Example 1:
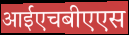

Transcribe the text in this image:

आईएचबीएएस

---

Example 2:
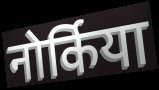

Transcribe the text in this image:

नोर्किया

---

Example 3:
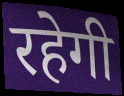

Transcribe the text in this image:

रहेगी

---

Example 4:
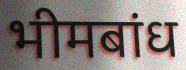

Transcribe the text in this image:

भीमबांध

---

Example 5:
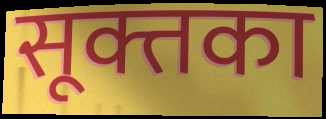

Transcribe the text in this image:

सूक्तका